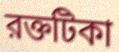
রক্তটিকা